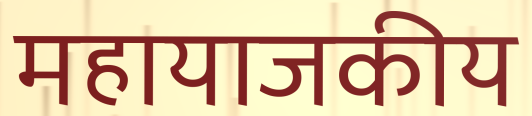
महायाजकीय